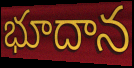
భూదాన